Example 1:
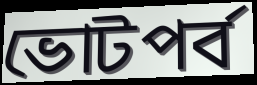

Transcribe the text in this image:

ভোটপর্ব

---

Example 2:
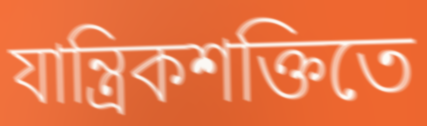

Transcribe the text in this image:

যান্ত্রিকশক্তিতে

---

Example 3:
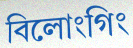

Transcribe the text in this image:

বিলোংগিং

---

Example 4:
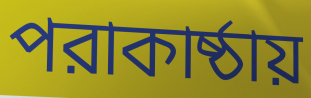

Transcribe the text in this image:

পরাকাষ্ঠায়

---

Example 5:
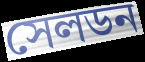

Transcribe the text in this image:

সেলডন